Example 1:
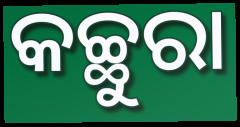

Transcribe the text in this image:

କଚ୍ଛୁରା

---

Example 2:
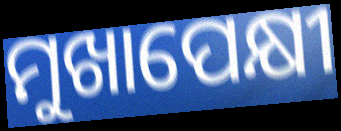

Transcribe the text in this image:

ମୁଖାପେକ୍ଷୀ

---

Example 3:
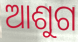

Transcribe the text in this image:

ଆଶୁଗ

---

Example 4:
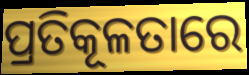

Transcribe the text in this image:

ପ୍ରତିକୂଳତାରେ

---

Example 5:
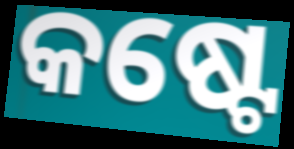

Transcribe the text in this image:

କଷ୍ଟେ